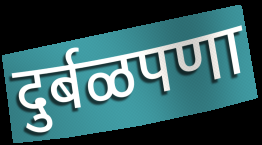
दुर्बळपणा